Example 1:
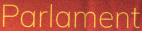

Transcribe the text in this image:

Parlament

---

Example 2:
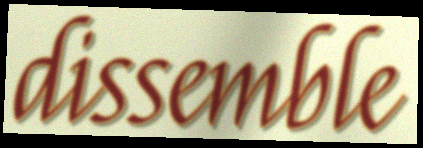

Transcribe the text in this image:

dissemble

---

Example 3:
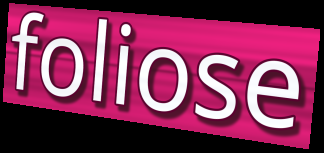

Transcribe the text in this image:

foliose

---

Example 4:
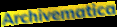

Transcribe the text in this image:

Archivematica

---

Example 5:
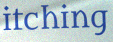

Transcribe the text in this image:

itching